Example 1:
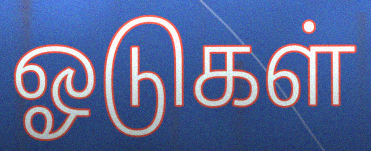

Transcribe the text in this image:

ஓடுகள்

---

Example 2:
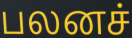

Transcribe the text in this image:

பலனச்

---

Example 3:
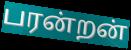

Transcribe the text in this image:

பரன்றன்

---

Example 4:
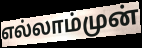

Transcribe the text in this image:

எல்லாம்முன்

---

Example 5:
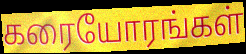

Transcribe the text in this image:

கரையோரங்கள்